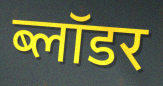
ब्लॉडर